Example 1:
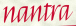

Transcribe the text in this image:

nantra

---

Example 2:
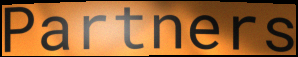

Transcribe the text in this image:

Partners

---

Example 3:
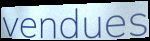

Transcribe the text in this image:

vendues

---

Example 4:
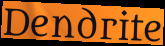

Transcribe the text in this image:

Dendrite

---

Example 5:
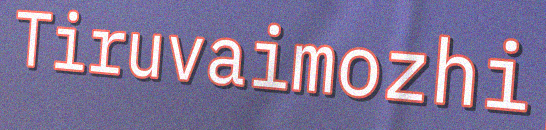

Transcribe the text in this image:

Tiruvaimozhi